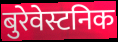
बुरेवेस्टनिक